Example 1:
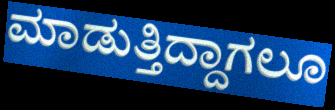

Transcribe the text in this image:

ಮಾಡುತ್ತಿದ್ದಾಗಲೂ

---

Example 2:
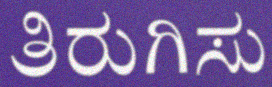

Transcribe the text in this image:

ತಿರುಗಿಸು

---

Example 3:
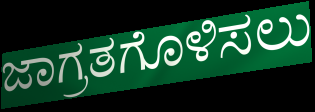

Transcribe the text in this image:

ಜಾಗ್ರತಗೊಳಿಸಲು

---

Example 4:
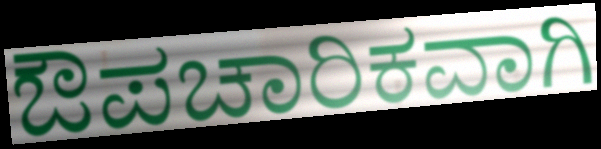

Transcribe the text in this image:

ಔಪಚಾರಿಕವಾಗಿ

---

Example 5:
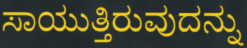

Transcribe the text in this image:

ಸಾಯುತ್ತಿರುವುದನ್ನು